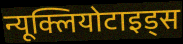
न्यूक्लियोटाइड्स